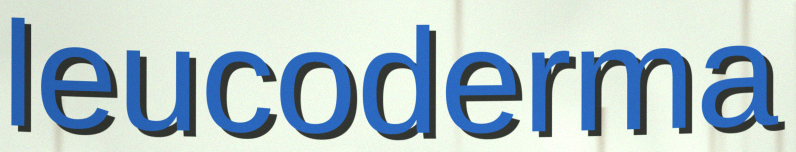
leucoderma